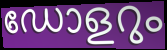
ഡോളറും